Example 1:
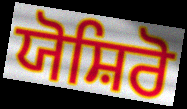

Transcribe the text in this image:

ਯੋਸ਼ਿਰੋ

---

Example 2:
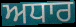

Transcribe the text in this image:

ਅਧਾਰ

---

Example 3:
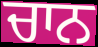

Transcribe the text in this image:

ਚਾਨ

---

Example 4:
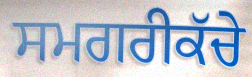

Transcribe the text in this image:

ਸਮਗਰੀਕੱਚੇ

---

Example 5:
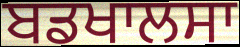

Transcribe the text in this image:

ਬਡਖਾਲਸਾ